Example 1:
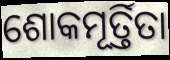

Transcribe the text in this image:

ଶୋକମୂର୍ତ୍ତିତା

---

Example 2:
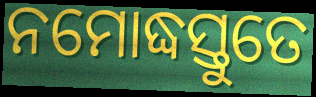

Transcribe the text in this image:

ନମୋଦ୍ଧସ୍ତୁତେ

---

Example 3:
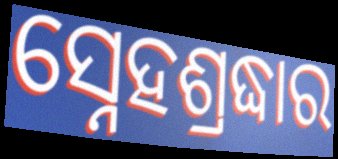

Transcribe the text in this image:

ସ୍ନେହଶ୍ରଦ୍ଧାର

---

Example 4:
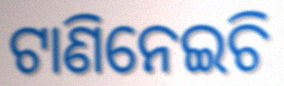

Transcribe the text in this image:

ଟାଣିନେଇଚି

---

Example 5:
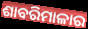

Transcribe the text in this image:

ଶାବରିମାଳାର